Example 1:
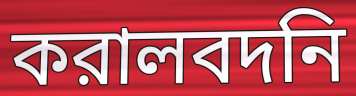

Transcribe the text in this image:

করালবদনি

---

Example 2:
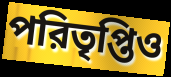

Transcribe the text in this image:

পরিতৃপ্তিও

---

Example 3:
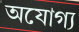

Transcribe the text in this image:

অযোগ্য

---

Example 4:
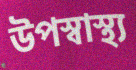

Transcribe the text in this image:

উপস্বাস্থ্য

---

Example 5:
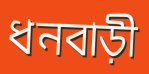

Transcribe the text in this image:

ধনবাড়ী